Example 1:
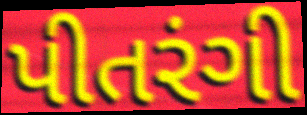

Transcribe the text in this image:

પીતરંગી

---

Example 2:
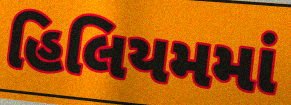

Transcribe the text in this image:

હિલિયમમાં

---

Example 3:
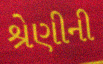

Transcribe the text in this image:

શ્રેણીની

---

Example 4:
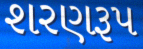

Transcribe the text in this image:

શરણરૂપ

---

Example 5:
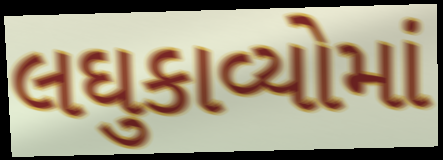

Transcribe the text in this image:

લઘુકાવ્યોમાં